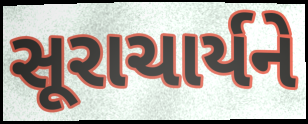
સૂરાચાર્યને